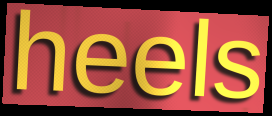
heels